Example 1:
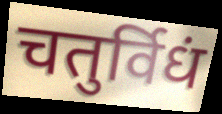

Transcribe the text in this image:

चतुर्विधं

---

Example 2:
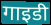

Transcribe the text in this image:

गाइडी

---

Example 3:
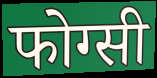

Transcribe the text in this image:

फोग्सी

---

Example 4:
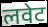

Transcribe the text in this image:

लवेट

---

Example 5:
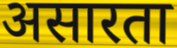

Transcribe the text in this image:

असारता